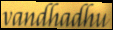
vandhadhu